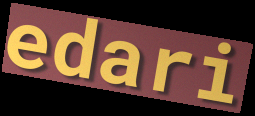
edari